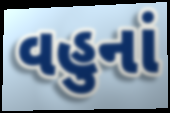
વહુનાં